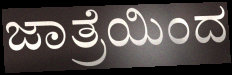
ಜಾತ್ರೆಯಿಂದ